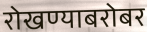
रोखण्याबरोबर